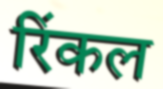
रिंकल